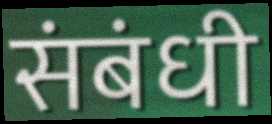
संबंधी